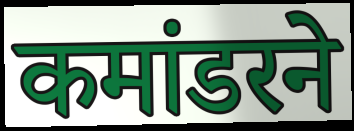
कमांडरने